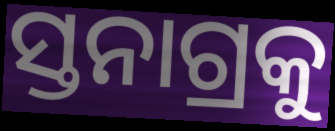
ସ୍ତନାଗ୍ରକୁ